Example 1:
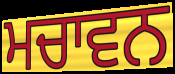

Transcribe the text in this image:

ਮਚਾਵਨ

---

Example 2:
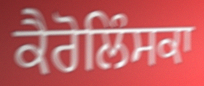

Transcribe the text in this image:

ਕੈਰੋਲਿੰਸਕਾ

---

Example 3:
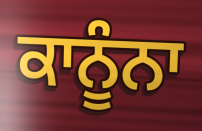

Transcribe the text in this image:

ਕਾਨੂੰਨਾ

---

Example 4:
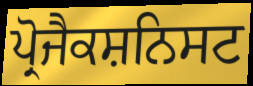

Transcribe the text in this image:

ਪ੍ਰੋਜੈਕਸ਼ਨਿਸਟ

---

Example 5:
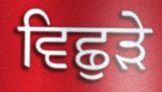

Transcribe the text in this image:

ਵਿਛੁੜੇ